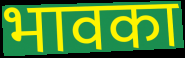
भावका